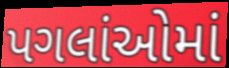
પગલાંઓમાં